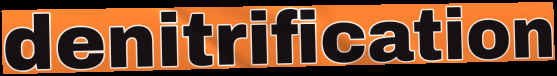
denitrification